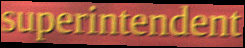
superintendent